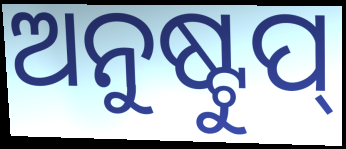
ଅନୁଷ୍ଟୁପ୍